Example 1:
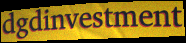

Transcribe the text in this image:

dgdinvestment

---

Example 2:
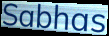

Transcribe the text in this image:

Sabhas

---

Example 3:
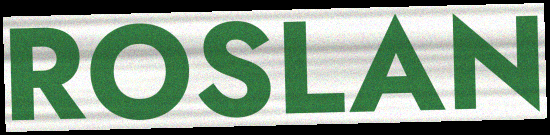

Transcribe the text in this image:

ROSLAN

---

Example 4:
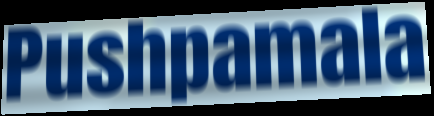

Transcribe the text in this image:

Pushpamala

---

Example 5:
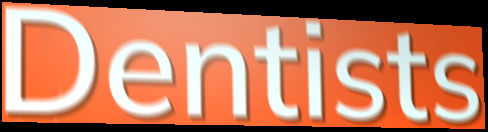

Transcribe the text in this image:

Dentists